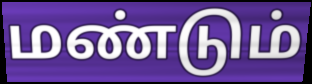
மண்டும்